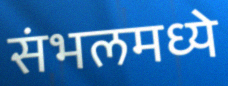
संभलमध्ये